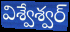
విశ్వేశ్వర్